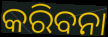
କରିବନା